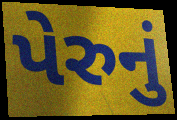
પેરુનું